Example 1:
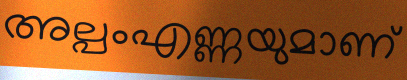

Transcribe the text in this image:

അല്പംഎണ്ണയുമാണ്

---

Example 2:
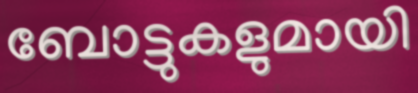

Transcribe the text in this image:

ബോട്ടുകളുമായി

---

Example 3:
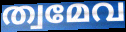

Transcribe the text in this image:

ത്വമേവ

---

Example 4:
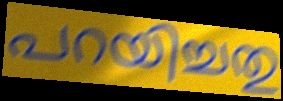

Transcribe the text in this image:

പറയിച്ചതു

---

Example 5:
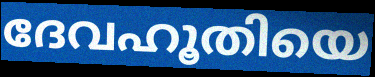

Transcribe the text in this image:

ദേവഹൂതിയെ